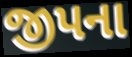
જીપના